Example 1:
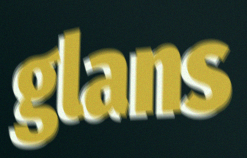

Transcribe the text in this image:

glans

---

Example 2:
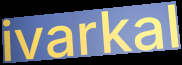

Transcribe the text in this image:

ivarkal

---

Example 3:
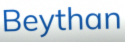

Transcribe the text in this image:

Beythan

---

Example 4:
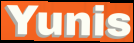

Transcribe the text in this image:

Yunis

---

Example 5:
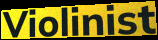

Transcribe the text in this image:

Violinist